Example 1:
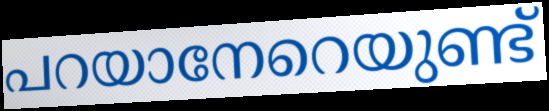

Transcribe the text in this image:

പറയാനേറെയുണ്ട്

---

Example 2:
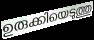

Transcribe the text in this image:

ഉരുക്കിയെടുത്തു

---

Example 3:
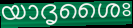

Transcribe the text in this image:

യാദൃശൈഃ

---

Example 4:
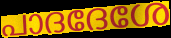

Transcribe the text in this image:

പാദദേശേ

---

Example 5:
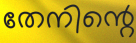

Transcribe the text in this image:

തേനിന്റെ